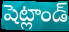
షెట్లాండ్